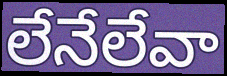
లేనేలేవా